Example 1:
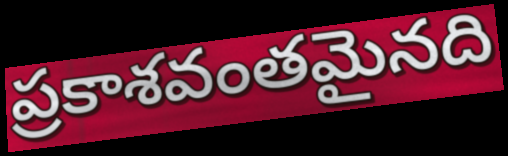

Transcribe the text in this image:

ప్రకాశవంతమైనది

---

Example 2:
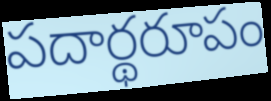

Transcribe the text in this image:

పదార్థరూపం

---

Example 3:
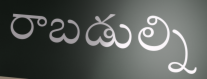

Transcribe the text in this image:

రాబడుల్ని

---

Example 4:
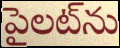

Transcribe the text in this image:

పైలట్‌ను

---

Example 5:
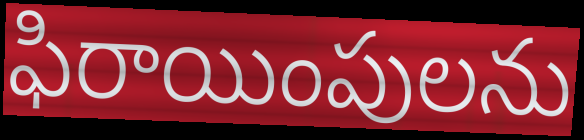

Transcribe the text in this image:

ఫిరాయింపులను